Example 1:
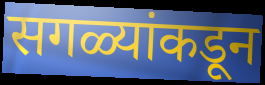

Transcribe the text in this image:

सगळ्यांकडून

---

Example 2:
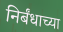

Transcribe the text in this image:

निर्बंधाच्या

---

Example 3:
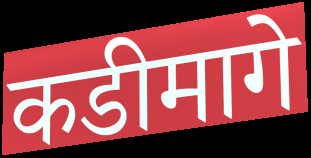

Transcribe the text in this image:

कडीमागे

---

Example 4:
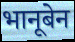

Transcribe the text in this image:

भानूबेन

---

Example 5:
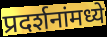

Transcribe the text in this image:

प्रदर्शनांमध्ये